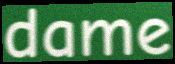
dame